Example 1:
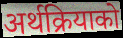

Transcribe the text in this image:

अर्थक्रियाको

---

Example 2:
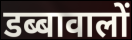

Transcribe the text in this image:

डब्बावालों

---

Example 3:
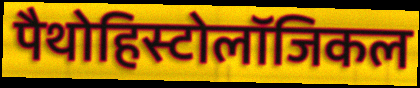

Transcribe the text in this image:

पैथोहिस्टोलॉजिकल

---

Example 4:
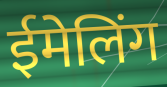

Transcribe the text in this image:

ईमेलिंग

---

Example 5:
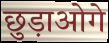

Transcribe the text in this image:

छुड़ाओगे